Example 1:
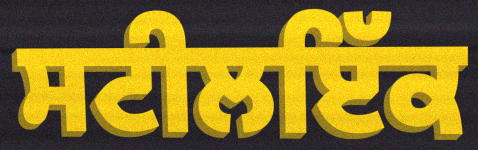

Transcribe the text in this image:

ਸਟੀਲਇੱਕ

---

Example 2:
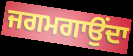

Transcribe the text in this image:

ਜਗਮਗਾਉਂਦਾ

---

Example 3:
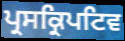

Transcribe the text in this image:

ਪ੍ਰਸਕ੍ਰਿਪਟਿਵ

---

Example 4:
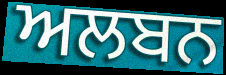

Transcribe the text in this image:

ਅਲਬਨ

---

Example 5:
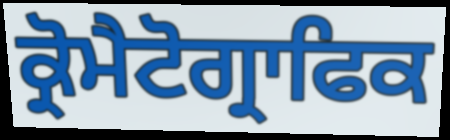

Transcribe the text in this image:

ਕ੍ਰੋਮੈਟੋਗ੍ਰਾਫਿਕ